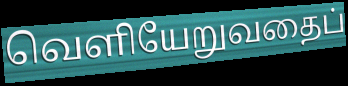
வெளியேறுவதைப்